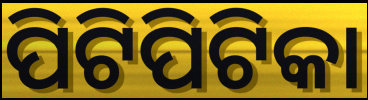
ପିଟିପିଟିକା